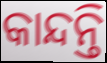
କାନ୍ଦନ୍ତି